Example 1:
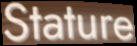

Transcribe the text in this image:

Stature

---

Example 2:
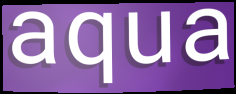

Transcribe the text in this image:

aqua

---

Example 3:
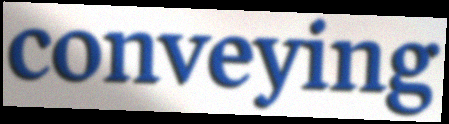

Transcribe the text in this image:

conveying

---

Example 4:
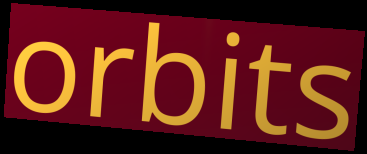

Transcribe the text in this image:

orbits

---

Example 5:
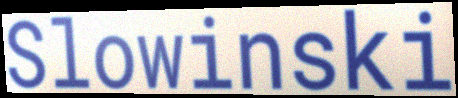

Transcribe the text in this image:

Slowinski